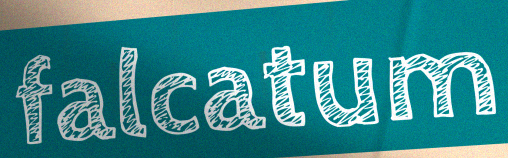
falcatum